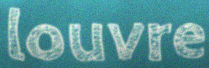
louvre